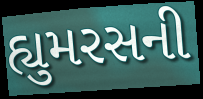
હ્યુમરસની